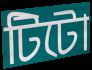
টিটো